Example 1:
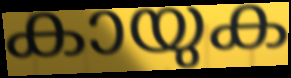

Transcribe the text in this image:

കായുക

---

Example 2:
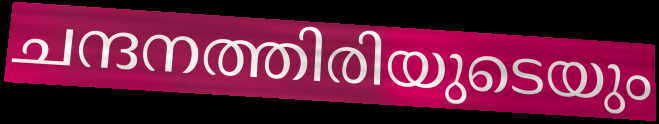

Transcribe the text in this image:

ചന്ദനത്തിരിയുടെയും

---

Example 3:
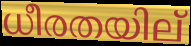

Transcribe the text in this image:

ധീരതയില്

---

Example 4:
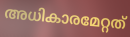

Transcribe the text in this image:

അധികാരമേറ്റത്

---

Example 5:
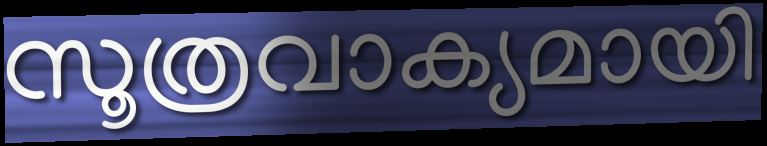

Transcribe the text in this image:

സൂത്രവാക്യമായി